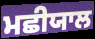
ਮਛੀਯਾਲ